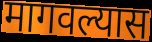
मागवल्यास